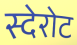
स्देरोट